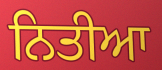
ਨਿਤੀਆ